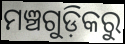
ମଞ୍ଚଗୁଡ଼ିକରୁ